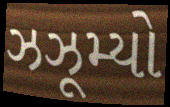
ઝઝૂમ્યો